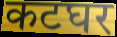
कटघर